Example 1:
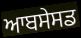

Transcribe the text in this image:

ਆਬਸੇਸਡ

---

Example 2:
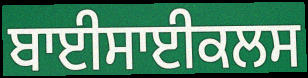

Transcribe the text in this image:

ਬਾਈਸਾਈਕਲਸ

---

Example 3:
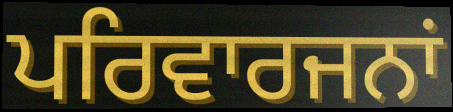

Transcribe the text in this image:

ਪਰਿਵਾਰਜਨਾਂ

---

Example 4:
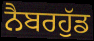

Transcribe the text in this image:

ਨੈਬਰਹੁੱਡ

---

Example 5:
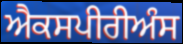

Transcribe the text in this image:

ਐਕਸਪੀਰੀਅੰਸ